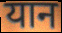
यान